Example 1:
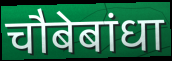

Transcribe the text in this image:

चौबेबांधा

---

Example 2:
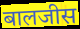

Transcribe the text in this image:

बालजीस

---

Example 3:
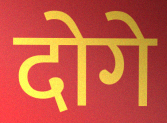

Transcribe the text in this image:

दोगे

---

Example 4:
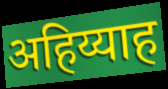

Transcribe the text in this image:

अहिय्याह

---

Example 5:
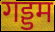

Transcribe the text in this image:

गड्डम